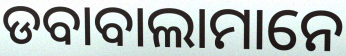
ଡବାବାଲାମାନେ